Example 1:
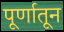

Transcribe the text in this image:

पूर्णातून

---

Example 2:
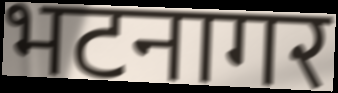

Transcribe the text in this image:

भटनागर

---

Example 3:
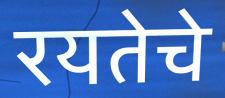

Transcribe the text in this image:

रयतेचे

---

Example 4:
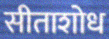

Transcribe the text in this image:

सीताशोध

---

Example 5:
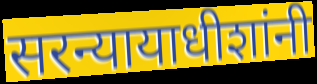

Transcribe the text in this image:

सरन्यायाधीशांनी